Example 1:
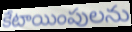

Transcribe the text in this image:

కేటాయింపులను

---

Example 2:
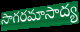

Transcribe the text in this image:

సాగరమాసాద్య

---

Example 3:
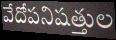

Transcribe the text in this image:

వేదోపనిషత్తుల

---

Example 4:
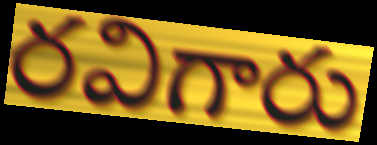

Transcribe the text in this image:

రవిగారు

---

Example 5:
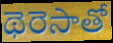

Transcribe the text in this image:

థెరెసాతో